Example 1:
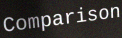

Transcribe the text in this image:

Comparison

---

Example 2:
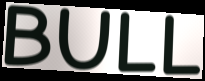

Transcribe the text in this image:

BULL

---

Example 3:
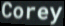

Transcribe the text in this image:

Corey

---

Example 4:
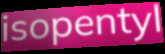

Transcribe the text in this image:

isopentyl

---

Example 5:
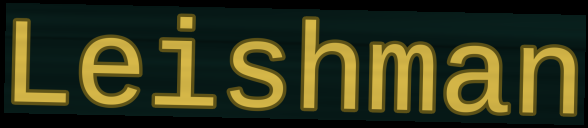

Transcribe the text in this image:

Leishman